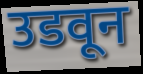
उडवून